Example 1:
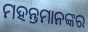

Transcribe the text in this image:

ମହନ୍ତମାନଙ୍କର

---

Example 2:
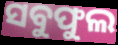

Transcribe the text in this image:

ସବୁଫୁଲ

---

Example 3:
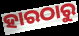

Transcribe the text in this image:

ହାରଠାରୁ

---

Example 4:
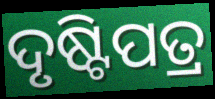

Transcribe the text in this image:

ଦୃଷ୍ଟିପତ୍ର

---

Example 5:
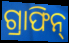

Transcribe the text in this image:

ଗ୍ରାଫିନ୍